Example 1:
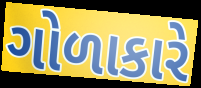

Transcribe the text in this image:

ગોળાકારે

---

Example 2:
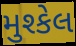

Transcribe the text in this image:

મુશ્કેલ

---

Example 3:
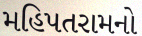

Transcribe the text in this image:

મહિપતરામનો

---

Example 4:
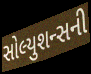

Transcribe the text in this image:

સોલ્યુશન્સની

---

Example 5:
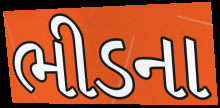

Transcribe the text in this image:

ભીડના